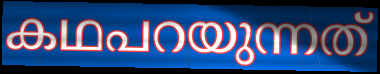
കഥപറയുന്നത്